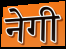
नेगी